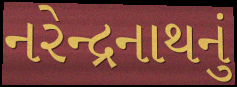
નરેન્દ્રનાથનું